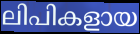
ലിപികളായ